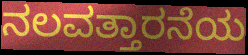
ನಲವತ್ತಾರನೆಯ